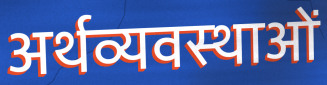
अर्थव्यवस्थाओं